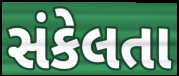
સંકેલતા